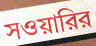
সওয়ারির